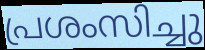
പ്രശംസിച്ചു